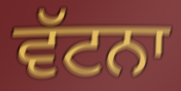
ਵੱਟਨਾ